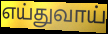
எய்துவாய்